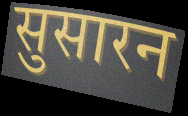
सुसारन